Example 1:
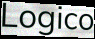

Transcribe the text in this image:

Logico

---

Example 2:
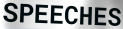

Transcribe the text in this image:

SPEECHES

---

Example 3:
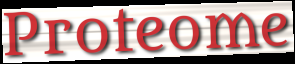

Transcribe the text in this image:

Proteome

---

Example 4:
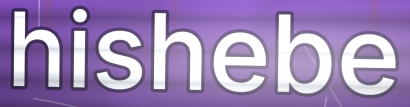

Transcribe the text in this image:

hishebe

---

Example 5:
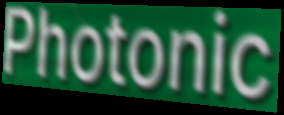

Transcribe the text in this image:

Photonic